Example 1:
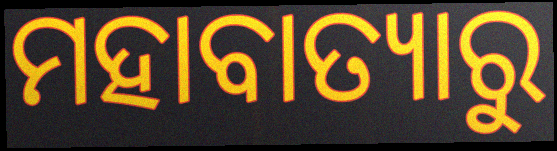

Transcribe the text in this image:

ମହାବାତ୍ୟାରୁ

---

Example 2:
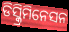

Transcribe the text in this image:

ଡିସ୍କ୍ରିମିନେସନ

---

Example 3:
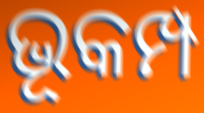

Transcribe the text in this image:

ଭୂକମ୍ପ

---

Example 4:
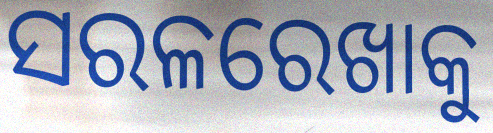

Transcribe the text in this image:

ସରଳରେଖାକୁ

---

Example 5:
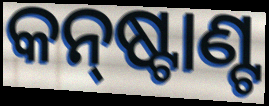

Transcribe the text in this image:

କନ୍‌ଷ୍ଟାଣ୍ଟ